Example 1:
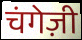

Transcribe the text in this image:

चंगेज़ी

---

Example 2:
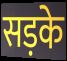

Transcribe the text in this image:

सड़के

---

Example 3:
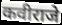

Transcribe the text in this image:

कवीराजे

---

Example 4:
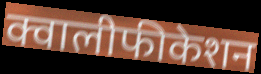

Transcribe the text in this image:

क्वालीफीकेशन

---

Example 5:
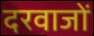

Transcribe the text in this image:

दरवाजों